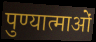
पुण्यात्माओं